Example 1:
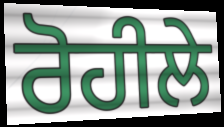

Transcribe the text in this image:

ਰੋਹੀਲੇ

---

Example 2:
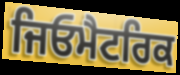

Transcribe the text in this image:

ਜਿਓਮੈਟਰਿਕ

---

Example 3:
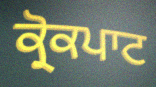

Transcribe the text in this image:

ਕ੍ਰੋਕਪਾਟ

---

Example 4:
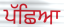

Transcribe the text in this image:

ਪੱਛਿਆ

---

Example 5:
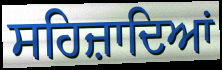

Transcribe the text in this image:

ਸਹਿਜ਼ਾਦਿਆਂ